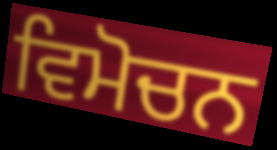
ਵਿਮੋਚਨ